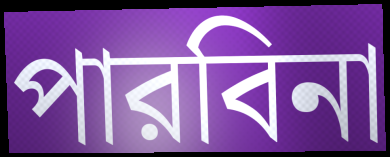
পারবিনা